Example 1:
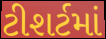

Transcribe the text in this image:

ટીશર્ટમાં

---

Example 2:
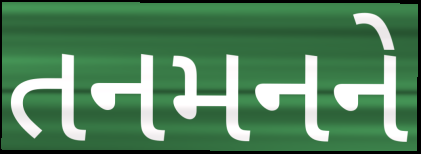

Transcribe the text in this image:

તનમનને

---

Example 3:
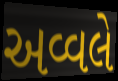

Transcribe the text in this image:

અવ્વલે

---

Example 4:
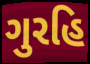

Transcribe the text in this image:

ગુરહિ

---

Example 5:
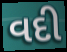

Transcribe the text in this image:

વદી